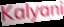
Kalyani